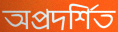
অপ্রদর্শিত